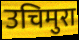
उचिमुरा